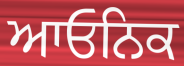
ਆਓਨਿਕ